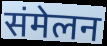
संमेलन